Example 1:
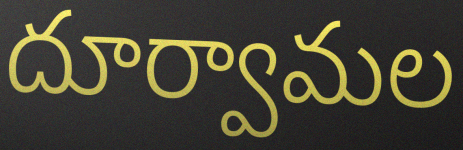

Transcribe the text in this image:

దూర్వామల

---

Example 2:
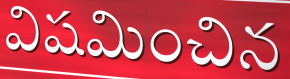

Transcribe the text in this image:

విషమించిన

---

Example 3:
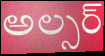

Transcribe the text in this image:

అల్సర్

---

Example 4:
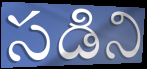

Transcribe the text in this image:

సడిని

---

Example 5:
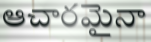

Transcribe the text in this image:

ఆచారమైనా